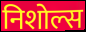
निशोल्स